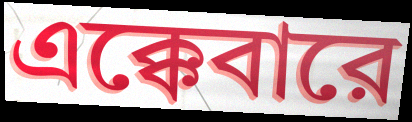
এক্কেবারে